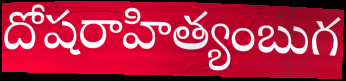
దోషరాహిత్యంబుగ